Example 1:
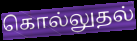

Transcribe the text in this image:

கொல்லுதல்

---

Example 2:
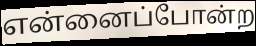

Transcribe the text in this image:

என்னைப்போன்ற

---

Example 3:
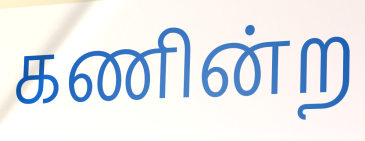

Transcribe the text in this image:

கணின்ற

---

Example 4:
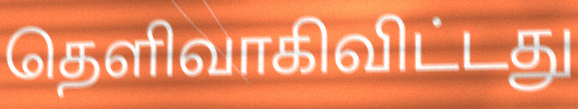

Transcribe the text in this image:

தெளிவாகிவிட்டது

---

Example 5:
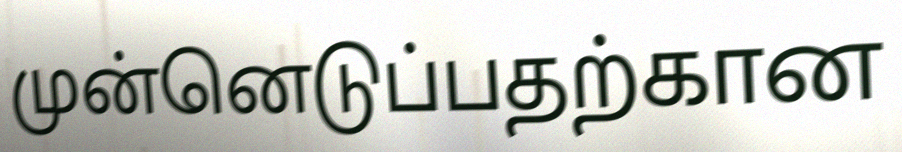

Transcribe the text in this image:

முன்னெடுப்பதற்கான